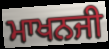
ਮਾਖਨਜੀ